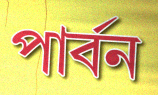
পার্বন